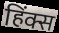
हिंक्स